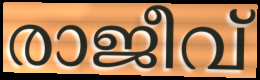
രാജീവ്